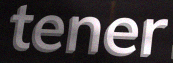
tener